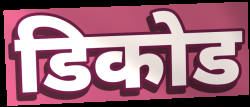
डिकोड